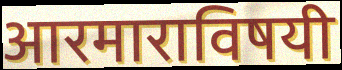
आरमाराविषयी